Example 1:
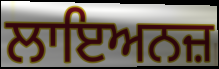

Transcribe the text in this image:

ਲਾਇਅਨਜ਼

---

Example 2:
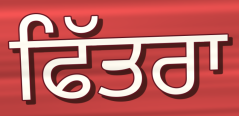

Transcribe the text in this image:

ਫਿੱਤਰਾ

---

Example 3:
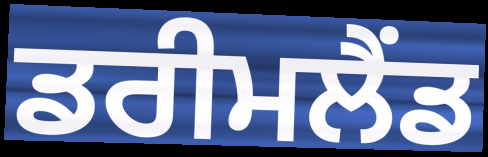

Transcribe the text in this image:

ਡਰੀਮਲੈਂਡ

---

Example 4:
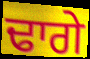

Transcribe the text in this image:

ਢਾਗੇ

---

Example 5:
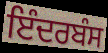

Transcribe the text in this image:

ਇੰਦਰਬੰਸ